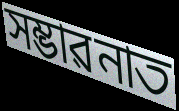
সম্ভাৱনাত